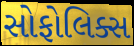
સોફોલિક્સ